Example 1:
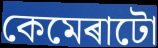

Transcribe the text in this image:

কেমেৰাটো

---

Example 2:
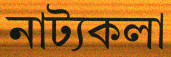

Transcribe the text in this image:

নাট্যকলা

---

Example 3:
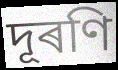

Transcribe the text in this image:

দূৰণি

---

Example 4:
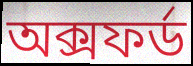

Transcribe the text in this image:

অক্সফৰ্ড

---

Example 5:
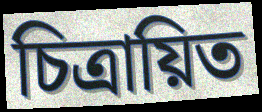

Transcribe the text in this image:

চিত্ৰায়িত